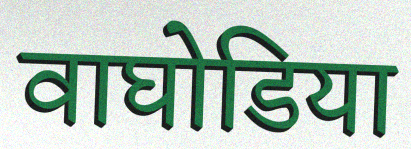
वाघोडिया